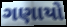
ગણાયો